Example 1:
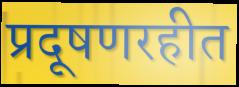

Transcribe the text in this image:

प्रदूषणरहीत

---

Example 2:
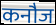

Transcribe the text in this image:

कनौज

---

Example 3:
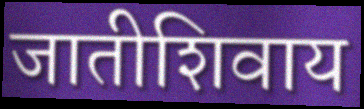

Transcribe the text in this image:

जातीशिवाय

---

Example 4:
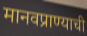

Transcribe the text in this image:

मानवप्राण्याची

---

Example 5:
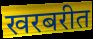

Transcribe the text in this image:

खरबरीत